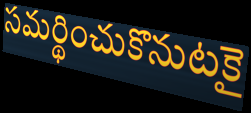
సమర్థించుకొనుటకై